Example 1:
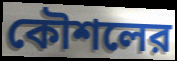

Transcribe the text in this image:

কৌশলের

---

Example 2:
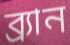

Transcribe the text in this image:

ব্র্যান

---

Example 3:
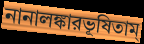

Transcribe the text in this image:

নানালঙ্কারভূষিতাম্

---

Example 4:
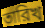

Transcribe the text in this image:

তারিখ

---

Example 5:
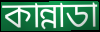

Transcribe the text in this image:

কান্নাডা